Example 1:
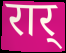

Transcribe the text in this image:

रार्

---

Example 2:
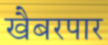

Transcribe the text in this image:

खैबरपार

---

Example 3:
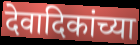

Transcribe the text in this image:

देवादिकांच्या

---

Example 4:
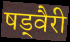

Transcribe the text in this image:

षड्वैरी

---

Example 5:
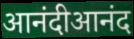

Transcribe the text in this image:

आनंदीआनंद